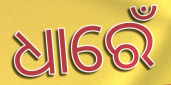
ଧାରେଁ